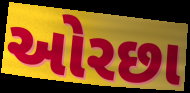
ઓરછા